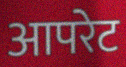
आपरेट